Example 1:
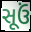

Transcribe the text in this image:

સૂઉં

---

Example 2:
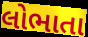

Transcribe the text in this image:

લોભાતા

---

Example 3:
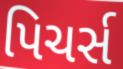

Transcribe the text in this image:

પિચર્સ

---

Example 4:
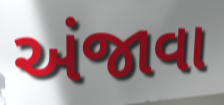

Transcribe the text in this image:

અંજાવા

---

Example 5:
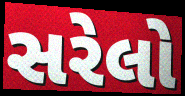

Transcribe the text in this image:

સરેલો